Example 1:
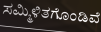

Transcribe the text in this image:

ಸಮ್ಮಿಳಿತಗೊಂಡಿವೆ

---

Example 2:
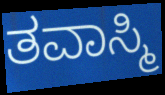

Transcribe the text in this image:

ತವಾಸ್ಮಿ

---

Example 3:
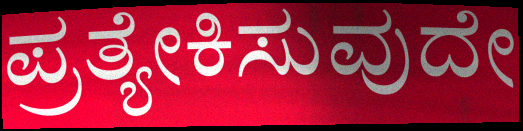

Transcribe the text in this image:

ಪ್ರತ್ಯೇಕಿಸುವುದೇ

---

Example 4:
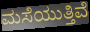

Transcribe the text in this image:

ಮಸೆಯುತ್ತಿವೆ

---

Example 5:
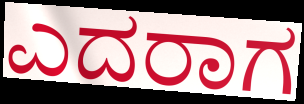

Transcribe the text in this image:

ಎದರಾಗ